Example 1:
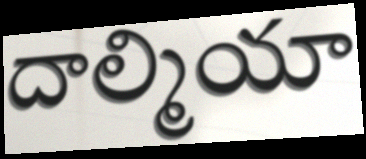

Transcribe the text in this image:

దాల్మియా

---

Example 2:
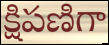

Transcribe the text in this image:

క్షిపణిగా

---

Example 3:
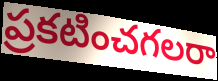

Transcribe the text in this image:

ప్రకటించగలరా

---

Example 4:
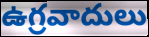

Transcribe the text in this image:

ఉగ్రవాదులు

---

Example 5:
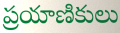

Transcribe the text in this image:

ప్రయాణికులు